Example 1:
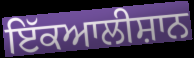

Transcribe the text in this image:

ਇੱਕਆਲੀਸ਼ਾਨ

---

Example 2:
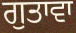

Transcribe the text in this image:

ਗੁਤਾਵਾ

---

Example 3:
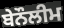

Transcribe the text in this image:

ਬੇਨੌਲੀਮ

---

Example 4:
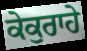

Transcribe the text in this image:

ਕੇਕੁਰਾਹੇ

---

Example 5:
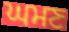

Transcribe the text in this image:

ਘਮਣ